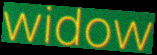
widow